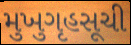
મુખુગૃહસૂચી